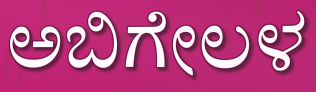
ಅಬಿಗೇಲಳ